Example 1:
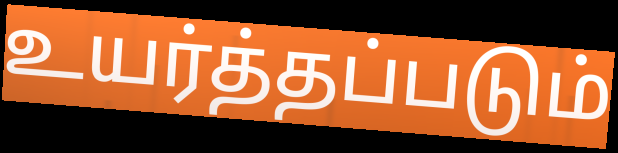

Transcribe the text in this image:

உயர்த்தப்படும்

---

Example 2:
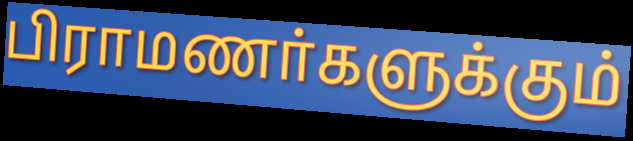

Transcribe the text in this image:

பிராமணர்களுக்கும்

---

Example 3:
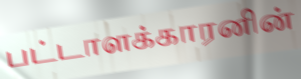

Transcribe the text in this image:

பட்டாளக்காரனின்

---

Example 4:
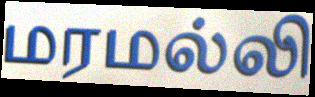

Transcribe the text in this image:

மரமல்லி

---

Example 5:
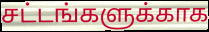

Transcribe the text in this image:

சட்டங்களுக்காக